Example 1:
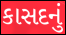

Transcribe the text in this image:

કાસદનું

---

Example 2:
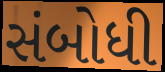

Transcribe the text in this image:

સંબોધી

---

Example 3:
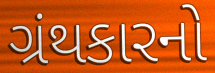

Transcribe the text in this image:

ગ્રંથકારનો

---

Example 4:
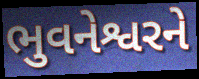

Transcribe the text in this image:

ભુવનેશ્વરને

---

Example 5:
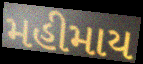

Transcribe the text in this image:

મહીમાય